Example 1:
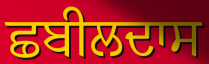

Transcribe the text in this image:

ਛਬੀਲਦਾਸ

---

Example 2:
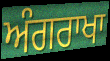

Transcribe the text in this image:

ਅੰਗਰਾਖਾ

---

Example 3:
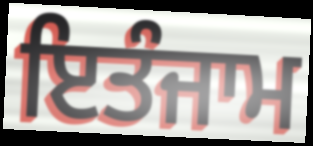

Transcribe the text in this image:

ਇਤੰਜਾਮ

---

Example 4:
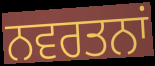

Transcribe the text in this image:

ਨਵਰਤਨਾਂ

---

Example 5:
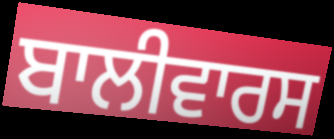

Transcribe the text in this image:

ਬਾਲੀਵਾਰਸ